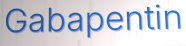
Gabapentin